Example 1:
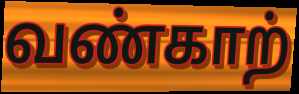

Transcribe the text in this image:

வண்காற்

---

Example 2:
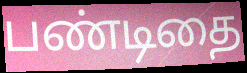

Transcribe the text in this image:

பண்டிதை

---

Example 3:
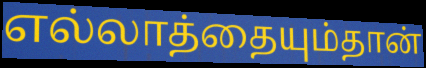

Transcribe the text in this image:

எல்லாத்தையும்தான்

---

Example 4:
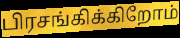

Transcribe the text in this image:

பிரசங்கிக்கிறோம்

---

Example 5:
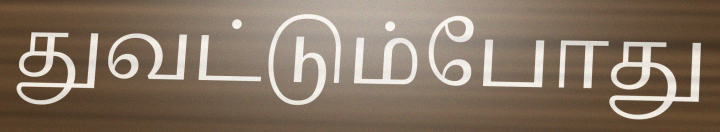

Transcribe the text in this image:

துவட்டும்போது